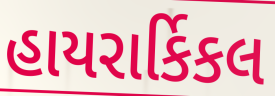
હાયરાર્કિકલ